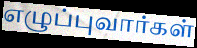
எழுப்புவார்கள்